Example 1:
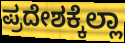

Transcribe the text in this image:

ಪ್ರದೇಶಕ್ಕೆಲ್ಲಾ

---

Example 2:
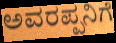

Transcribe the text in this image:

ಅವರಪ್ಪನಿಗೆ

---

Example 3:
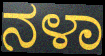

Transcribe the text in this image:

ನಳಾ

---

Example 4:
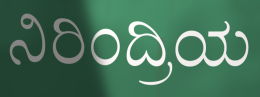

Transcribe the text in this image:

ನಿರಿಂದ್ರಿಯ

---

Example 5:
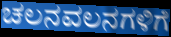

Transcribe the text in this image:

ಚಲನವಲನಗಳಿಗೆ